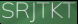
SRJTKT